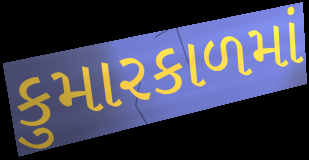
કુમારકાળમાં